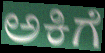
ಅಕಿಗೆ